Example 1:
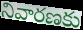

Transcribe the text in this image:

నివారణకు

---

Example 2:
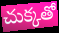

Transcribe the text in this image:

చుక్కతో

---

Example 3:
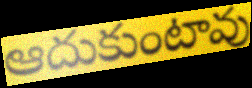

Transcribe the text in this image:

ఆదుకుంటావు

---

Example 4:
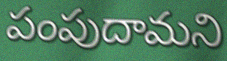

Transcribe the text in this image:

పంపుదామని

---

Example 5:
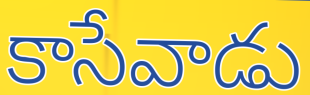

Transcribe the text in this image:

కాసేవాడు